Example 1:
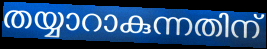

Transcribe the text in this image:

തയ്യാറാകുന്നതിന്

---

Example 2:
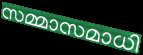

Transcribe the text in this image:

സമ്മാസമാധി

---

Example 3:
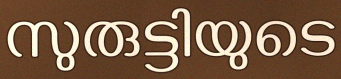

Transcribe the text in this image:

സുരുട്ടിയുടെ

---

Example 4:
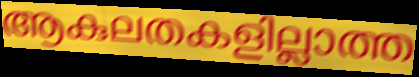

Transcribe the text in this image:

ആകുലതകളില്ലാത്ത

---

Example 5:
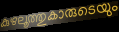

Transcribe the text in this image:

കുഴലൂത്തുകാരുടെയും